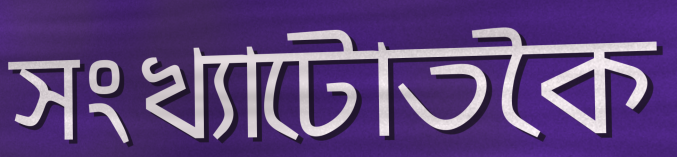
সংখ্যাটোতকৈ